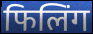
फिलिंग